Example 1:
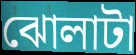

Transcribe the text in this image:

ঝোলাটা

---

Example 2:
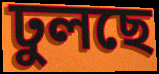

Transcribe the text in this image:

ঢুলছে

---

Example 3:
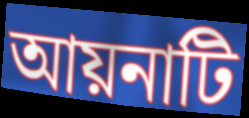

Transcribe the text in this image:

আয়নাটি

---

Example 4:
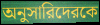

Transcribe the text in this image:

অনুসারিদেরকে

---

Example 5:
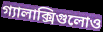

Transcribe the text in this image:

গ্যালাক্সিগুলোও